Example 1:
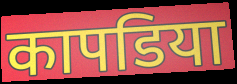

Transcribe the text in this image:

कापडिया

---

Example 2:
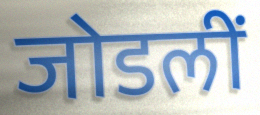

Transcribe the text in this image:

जोडलीं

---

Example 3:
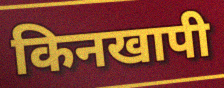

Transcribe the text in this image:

किनखापी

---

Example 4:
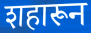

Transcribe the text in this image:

शहारून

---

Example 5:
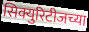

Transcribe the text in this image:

सिक्युरिटीजच्या